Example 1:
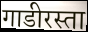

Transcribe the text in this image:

गाडीरस्ता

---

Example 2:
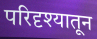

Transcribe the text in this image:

परिदृश्यातून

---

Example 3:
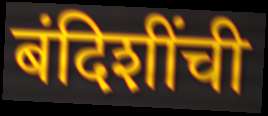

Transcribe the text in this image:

बंदिशींची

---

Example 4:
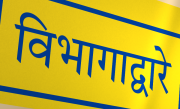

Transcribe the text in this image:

विभागाद्वारे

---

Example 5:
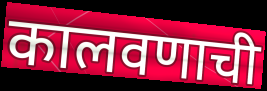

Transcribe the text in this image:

कालवणाची